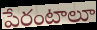
పేరంటాలూ